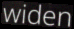
widen